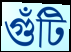
গুঁটি